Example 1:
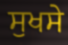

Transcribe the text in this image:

ਸੁਖਸੇ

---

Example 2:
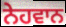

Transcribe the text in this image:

ਨੇਹਵਾਨ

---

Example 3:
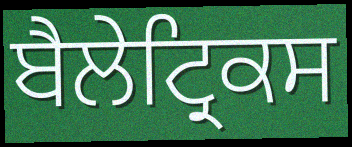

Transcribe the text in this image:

ਬੈਲੇਟ੍ਰਿਕਸ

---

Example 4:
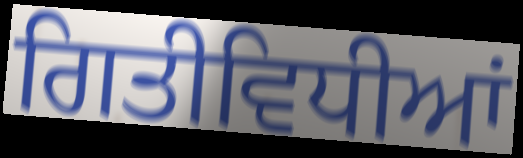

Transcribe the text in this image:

ਗਿਤੀਵਿਧੀਆਂ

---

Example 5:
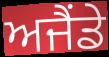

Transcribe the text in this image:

ਅਜੈਂਡੇ